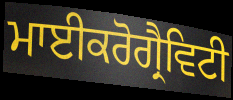
ਮਾਈਕਰੋਗ੍ਰੈਵਿਟੀ